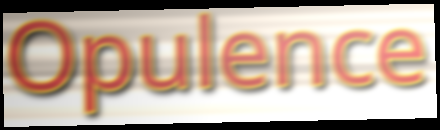
Opulence